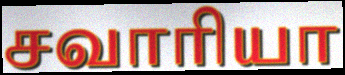
சவாரியா